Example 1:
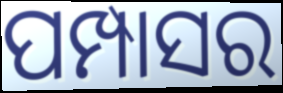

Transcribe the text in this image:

ପମ୍ପାସର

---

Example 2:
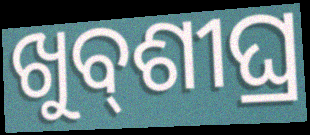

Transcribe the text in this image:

ଖୁବ୍‌ଶୀଘ୍ର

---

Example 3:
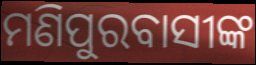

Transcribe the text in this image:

ମଣିପୁରବାସୀଙ୍କ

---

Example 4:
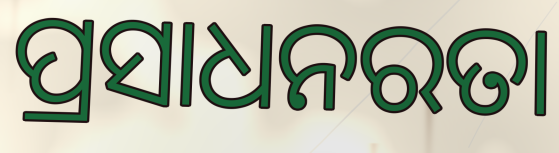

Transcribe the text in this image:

ପ୍ରସାଧନରତା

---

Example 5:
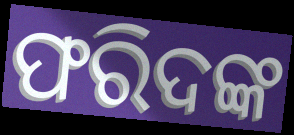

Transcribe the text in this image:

ଫରିଦଙ୍କ